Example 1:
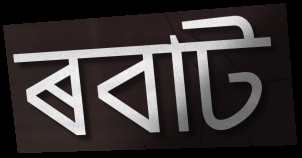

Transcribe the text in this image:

ৰবাট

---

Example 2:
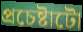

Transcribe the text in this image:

প্ৰচেষ্টাটো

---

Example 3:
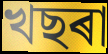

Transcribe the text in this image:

খছৰা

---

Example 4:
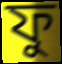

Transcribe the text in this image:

ফু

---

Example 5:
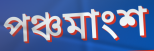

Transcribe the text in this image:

পঞ্চমাংশ